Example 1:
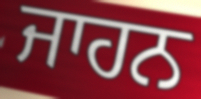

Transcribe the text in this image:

ਜਾਹਨ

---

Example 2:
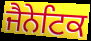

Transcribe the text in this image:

ਜੈਨੇਟਿਕ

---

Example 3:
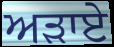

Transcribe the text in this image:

ਅੜਾਏ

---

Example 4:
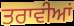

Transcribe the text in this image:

ਤਰਾਵੀਆਂ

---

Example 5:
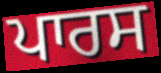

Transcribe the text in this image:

ਪਾਰਸ